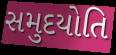
સમુદયોતિ